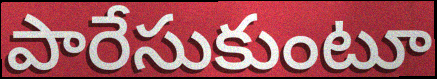
పారేసుకుంటూ